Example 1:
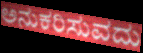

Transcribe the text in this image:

ಅನುಕರಿಸುವದು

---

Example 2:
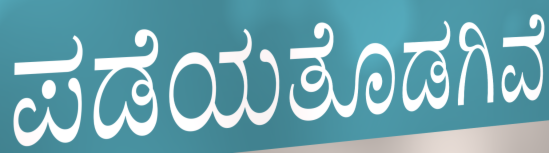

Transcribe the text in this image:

ಪಡೆಯತೊಡಗಿವೆ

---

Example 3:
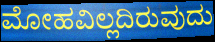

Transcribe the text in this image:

ಮೋಹವಿಲ್ಲದಿರುವುದು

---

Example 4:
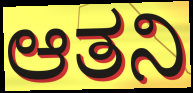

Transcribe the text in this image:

ಆತನಿ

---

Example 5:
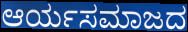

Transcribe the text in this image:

ಆರ್ಯಸಮಾಜದ